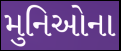
મુનિઓના